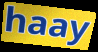
haay